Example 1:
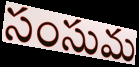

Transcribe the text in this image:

సంసుమ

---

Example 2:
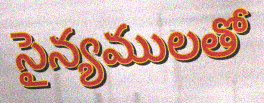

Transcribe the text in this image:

సైన్యములతో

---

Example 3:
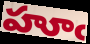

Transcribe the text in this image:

హూఁ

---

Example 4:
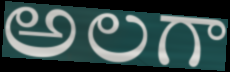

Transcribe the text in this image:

అలగా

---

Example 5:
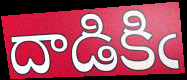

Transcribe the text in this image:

దాడికిఁ